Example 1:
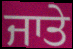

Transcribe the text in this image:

ਜਾਤੇ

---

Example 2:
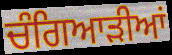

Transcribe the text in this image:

ਚੰਗਿਆੜੀਆਂ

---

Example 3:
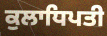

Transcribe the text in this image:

ਕੁਲਾਧਿਪਤੀ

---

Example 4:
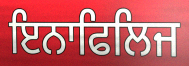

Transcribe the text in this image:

ਇਨਾਫਿਲਿਜ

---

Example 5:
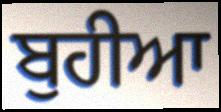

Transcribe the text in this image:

ਬੁਹੀਆ